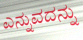
ಎನ್ನುವದನ್ನು